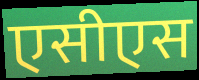
एसीएस